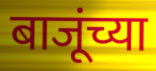
बाजूंच्या